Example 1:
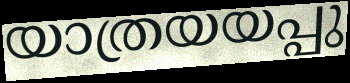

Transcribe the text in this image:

യാത്രയയപ്പു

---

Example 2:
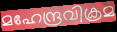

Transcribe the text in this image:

മഹേന്ദ്രവിക്രമ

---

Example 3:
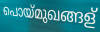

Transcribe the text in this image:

പൊയ്മുഖങ്ങള്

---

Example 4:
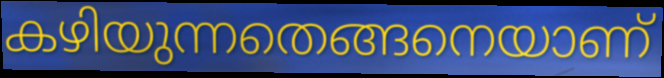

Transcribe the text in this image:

കഴിയുന്നതെങ്ങനെയാണ്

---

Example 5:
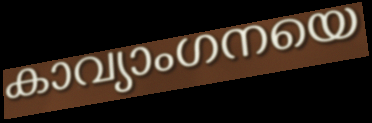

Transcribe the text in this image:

കാവ്യാംഗനയെ